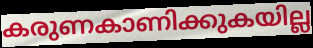
കരുണകാണിക്കുകയില്ല